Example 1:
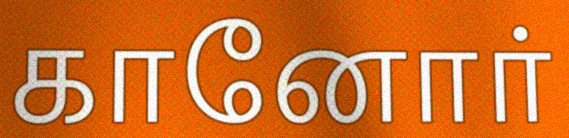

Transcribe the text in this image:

கானோர்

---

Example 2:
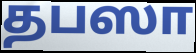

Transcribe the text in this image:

தபஸா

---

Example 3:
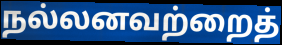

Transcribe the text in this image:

நல்லனவற்றைத்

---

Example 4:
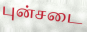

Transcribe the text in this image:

புன்சடை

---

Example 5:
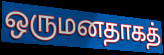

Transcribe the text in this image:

ஒருமனதாகத்